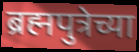
ब्रह्मपुत्रेच्या